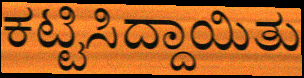
ಕಟ್ಟಿಸಿದ್ದಾಯಿತು